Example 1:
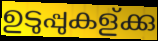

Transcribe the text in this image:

ഉടുപ്പുകള്ക്കു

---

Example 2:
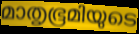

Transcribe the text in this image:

മാതൃഭൂമിയുടെ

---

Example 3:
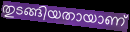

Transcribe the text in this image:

തുടങ്ങിയതായാണ്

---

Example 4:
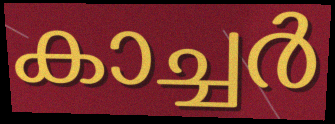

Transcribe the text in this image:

കാച്ചർ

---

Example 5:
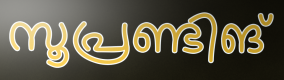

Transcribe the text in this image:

സൂപ്രണ്ടിങ്